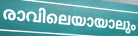
രാവിലെയായാലും